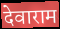
देवाराम